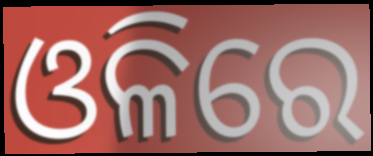
ଓଳିରେ